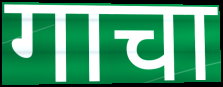
गाचा